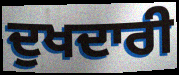
ਦੁਖਦਾਰੀ